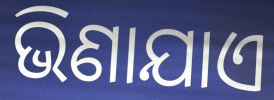
ଭିଣାଯାଏ